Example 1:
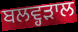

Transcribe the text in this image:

ਬਲਵ੍ਹੜਾਲ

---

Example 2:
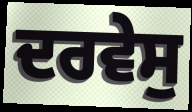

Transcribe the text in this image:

ਦਰਵੇਸੁ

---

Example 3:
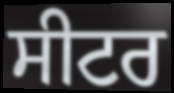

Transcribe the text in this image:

ਸੀਟਰ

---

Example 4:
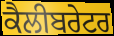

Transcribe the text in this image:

ਕੈਲੀਬਰੇਟਰ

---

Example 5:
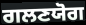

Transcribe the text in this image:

ਗਲਣਯੋਗ